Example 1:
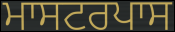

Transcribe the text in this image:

ਮਾਸਟਰਪਾਸ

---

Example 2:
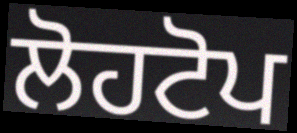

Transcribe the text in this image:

ਲੋਹਟੋਪ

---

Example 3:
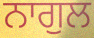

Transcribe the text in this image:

ਨਾਗੁਲ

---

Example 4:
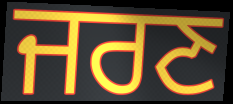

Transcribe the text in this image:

ਜਰਣ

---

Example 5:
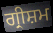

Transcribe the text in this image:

ਗ੍ਰੀਸ਼ਮ